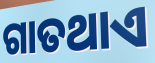
ଗାତଥାଏ